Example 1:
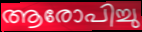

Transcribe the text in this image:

ആരോപിച്ചു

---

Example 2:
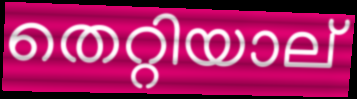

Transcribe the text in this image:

തെറ്റിയാല്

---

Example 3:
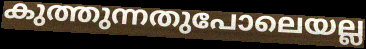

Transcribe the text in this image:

കുത്തുന്നതുപോലെയല്ല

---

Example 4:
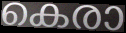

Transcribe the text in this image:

കെരാ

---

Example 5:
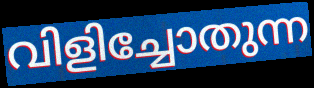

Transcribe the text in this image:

വിളിച്ചോതുന്ന